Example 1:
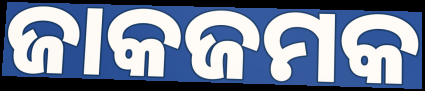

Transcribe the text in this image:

ଜାକଜମକ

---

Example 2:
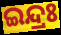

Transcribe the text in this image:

ଇନ୍ଦ୍ରଃ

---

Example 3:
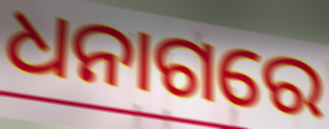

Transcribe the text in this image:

ଧନାଗରେ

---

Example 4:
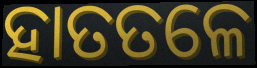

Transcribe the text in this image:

ହାତତଳେ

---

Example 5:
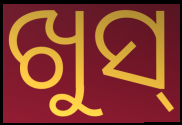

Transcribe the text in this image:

ଖୁସ୍